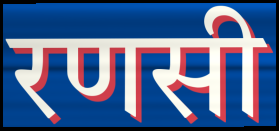
रणसी